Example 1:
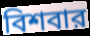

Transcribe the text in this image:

বিশবার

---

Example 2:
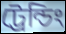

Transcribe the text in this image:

ট্রেন্ডিং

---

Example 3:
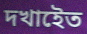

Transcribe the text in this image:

দখাইেত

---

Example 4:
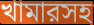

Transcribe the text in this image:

খামারসহ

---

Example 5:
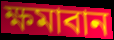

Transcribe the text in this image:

ক্ষমাবান